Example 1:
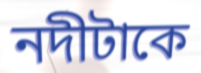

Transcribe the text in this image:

নদীটাকে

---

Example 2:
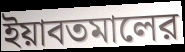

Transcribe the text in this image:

ইয়াবতমালের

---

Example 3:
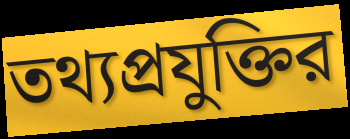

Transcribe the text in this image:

তথ্যপ্রযুক্তির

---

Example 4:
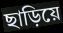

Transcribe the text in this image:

ছাড়িয়ে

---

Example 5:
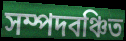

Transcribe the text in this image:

সম্পদবঞ্চিত